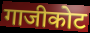
गाजीकोट